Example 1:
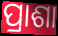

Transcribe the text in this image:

ପ୍ରାଶା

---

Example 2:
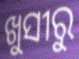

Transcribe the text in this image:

ଖୁସୀରୁ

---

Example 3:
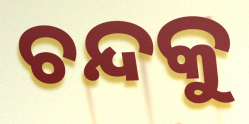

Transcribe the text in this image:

ଚନ୍ଦକୁ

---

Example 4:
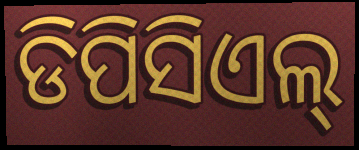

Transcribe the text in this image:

ଡିପିସିଏଲ୍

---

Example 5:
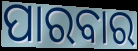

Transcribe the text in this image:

ପାରବାର